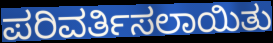
ಪರಿವರ್ತಿಸಲಾಯಿತು